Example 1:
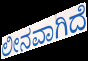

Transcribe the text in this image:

ಲೀನವಾಗಿದೆ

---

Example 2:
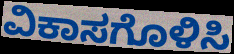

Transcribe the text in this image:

ವಿಕಾಸಗೊಳಿಸಿ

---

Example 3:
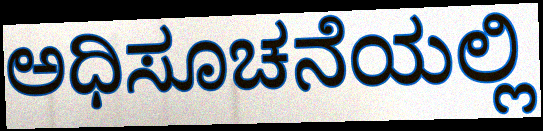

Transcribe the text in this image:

ಅಧಿಸೂಚನೆಯಲ್ಲಿ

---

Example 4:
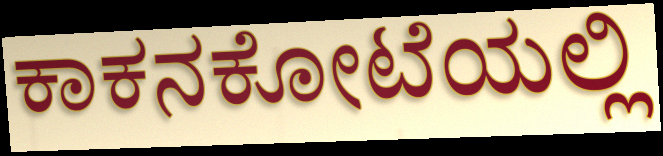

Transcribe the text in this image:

ಕಾಕನಕೋಟೆಯಲ್ಲಿ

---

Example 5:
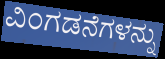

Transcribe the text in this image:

ವಿಂಗಡನೆಗಳನ್ನು